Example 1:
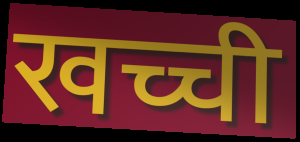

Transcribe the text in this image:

खच्ची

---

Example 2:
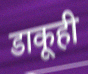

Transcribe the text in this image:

डाकूही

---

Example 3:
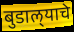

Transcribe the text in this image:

बुडाल्याचे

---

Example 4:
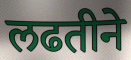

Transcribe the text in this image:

लढतीने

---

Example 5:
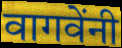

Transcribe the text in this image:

वागवेंनी